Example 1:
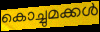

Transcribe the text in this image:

കൊച്ചുമക്കൾ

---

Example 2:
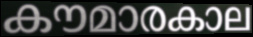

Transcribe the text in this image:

കൗമാരകാല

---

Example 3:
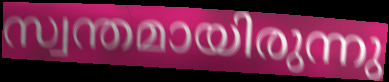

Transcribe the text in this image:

സ്വന്തമായിരുന്നു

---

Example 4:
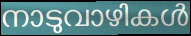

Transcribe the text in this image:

നാടുവാഴികൾ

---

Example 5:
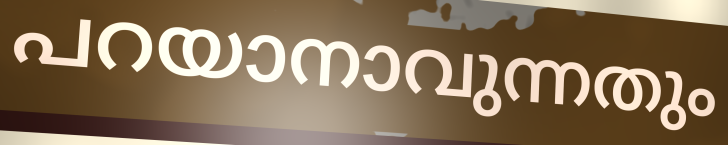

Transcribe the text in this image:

പറയാനാവുന്നതും